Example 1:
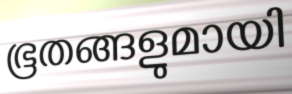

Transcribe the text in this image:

ഭൂതങ്ങളുമായി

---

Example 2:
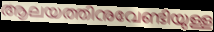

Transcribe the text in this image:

ആലയത്തിനുവേണ്ടിയുള്ള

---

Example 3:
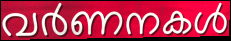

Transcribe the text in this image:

വർണനകൾ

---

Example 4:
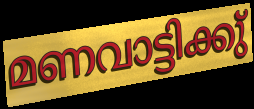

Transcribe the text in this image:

മണവാട്ടിക്കു്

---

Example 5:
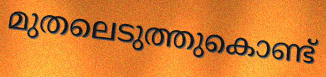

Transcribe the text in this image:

മുതലെടുത്തുകൊണ്ട്